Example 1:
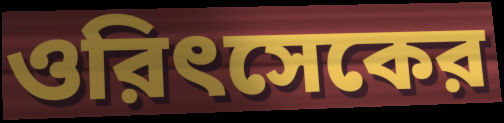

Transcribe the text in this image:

ওরিৎসেকের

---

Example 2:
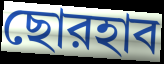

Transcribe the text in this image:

ছোরহাব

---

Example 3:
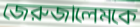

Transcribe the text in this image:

জেরুজালেমকে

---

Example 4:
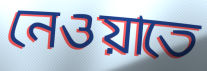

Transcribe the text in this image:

নেওয়াতে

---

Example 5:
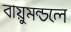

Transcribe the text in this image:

বায়ুমন্ডলে